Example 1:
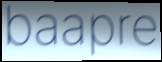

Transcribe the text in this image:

baapre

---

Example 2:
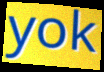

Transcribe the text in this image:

yok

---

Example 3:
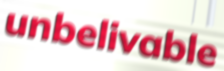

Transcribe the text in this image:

unbelivable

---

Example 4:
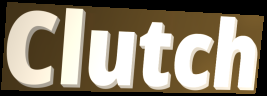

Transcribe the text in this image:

Clutch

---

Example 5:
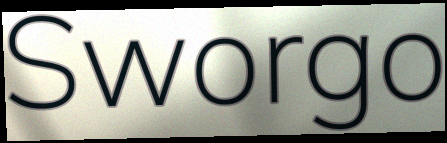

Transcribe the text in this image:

Sworgo